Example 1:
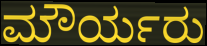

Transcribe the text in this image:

ಮೌರ್ಯರು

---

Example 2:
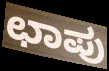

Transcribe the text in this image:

ಛಾಪು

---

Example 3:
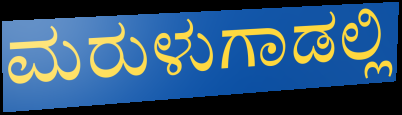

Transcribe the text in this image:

ಮರುಳುಗಾಡಲ್ಲಿ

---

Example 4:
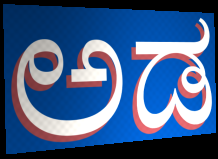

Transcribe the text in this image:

ಅಡ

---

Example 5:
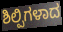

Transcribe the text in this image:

ಶಿಲ್ಪಿಗಳಾದ